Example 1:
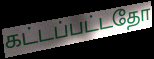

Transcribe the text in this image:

கட்டப்பட்டதோ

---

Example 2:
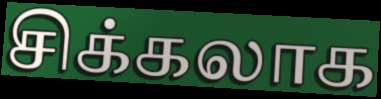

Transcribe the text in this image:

சிக்கலாக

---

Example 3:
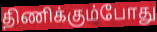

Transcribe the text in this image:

திணிக்கும்போது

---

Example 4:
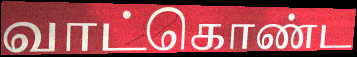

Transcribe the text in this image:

வாட்கொண்ட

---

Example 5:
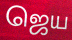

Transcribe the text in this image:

ஜெய